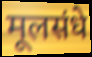
मूलसंधे